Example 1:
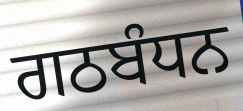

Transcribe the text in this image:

ਗਠਬੰਧਨ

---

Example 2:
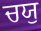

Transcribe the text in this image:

ਚਯੁ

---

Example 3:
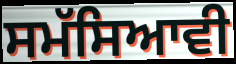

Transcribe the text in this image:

ਸਮੱਸਿਆਵੀ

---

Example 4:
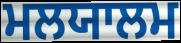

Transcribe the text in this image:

ਮਲਯਾਲਮ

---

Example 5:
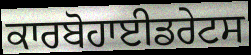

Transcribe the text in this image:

ਕਾਰਬੋਹਾਈਡਰੇਟਸ